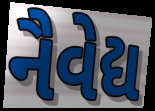
નૈવેદ્ય